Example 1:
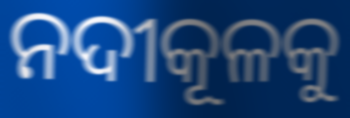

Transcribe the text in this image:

ନଦୀକୂଳକୁ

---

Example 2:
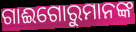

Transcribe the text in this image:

ଗାଈଗୋରୁମାନଙ୍କ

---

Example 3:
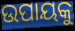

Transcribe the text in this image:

ଉପାୟକୁ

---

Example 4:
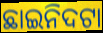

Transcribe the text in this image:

ଛାଇନିଦଟା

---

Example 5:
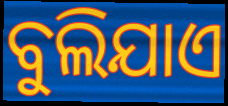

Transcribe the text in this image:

ବୁଲିଯାଏ